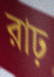
রাঢ়